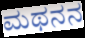
ಮಥನನ